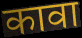
कावा